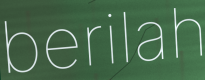
berilah